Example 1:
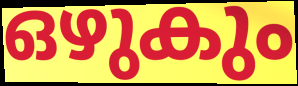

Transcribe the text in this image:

ഒഴുകും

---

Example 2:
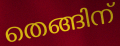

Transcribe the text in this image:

തെങ്ങിന്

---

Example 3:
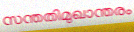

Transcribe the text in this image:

സന്തതിമുഖാന്തരം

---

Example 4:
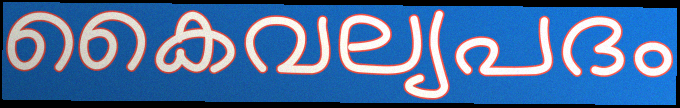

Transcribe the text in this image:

കൈവല്യപദം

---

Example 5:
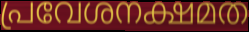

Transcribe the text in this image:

പ്രവേശനക്ഷമത